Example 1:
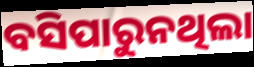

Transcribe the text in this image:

ବସିପାରୁନଥିଲା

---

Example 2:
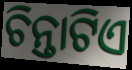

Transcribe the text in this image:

ଚିନ୍ତାଟିଏ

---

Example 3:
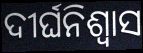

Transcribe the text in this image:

ଦୀର୍ଘନିଶ୍ବାସ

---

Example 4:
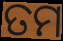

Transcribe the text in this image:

ତମ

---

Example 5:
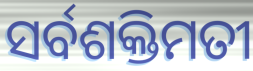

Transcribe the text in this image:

ସର୍ବଶକ୍ତିମତୀ